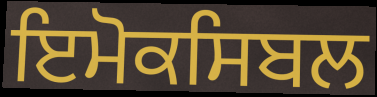
ਇਮੋਕਸਿਬਲ